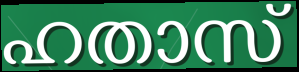
ഹതാസ്